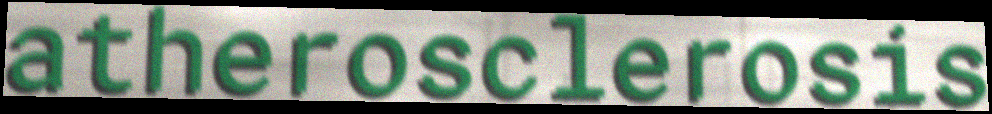
atherosclerosis